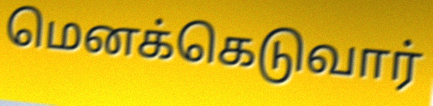
மெனக்கெடுவார்